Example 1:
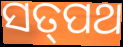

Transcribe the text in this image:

ସତ୍‌ପଥ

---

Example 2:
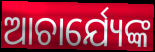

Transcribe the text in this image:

ଆଚାର୍ଯ୍ୟେଙ୍କ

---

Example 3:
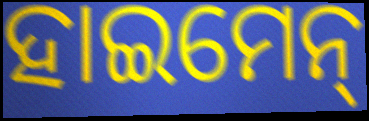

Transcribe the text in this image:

ହାଇମେନ୍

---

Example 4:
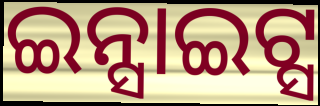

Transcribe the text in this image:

ଇନ୍ସାଇଟ୍ସ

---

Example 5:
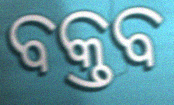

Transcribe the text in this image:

ବକ୍ତବ